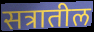
सत्रातील